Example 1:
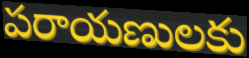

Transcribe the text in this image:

పరాయణులకు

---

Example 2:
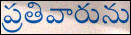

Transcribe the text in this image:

ప్రతివారును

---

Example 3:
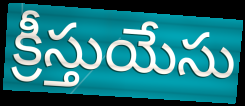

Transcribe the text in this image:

క్రీస్తుయేసు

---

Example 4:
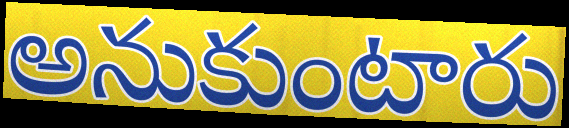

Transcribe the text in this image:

అనుకుంటారు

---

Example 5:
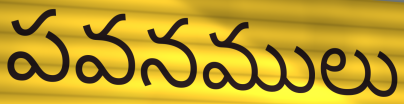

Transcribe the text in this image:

పవనములు